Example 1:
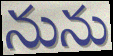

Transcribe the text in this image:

నును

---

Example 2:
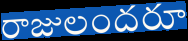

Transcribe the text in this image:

రాజులందరూ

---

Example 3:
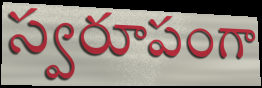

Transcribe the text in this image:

స్వరూపంగా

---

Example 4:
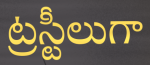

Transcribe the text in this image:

ట్రస్టీలుగా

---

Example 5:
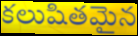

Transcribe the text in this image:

కలుషితమైన